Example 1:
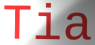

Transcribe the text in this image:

Tia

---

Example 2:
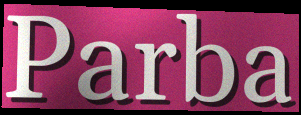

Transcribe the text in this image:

Parba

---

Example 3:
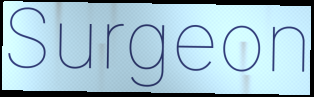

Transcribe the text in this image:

Surgeon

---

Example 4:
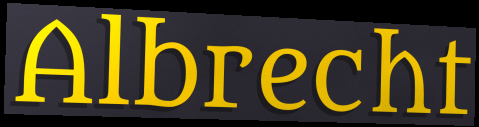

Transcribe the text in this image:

Albrecht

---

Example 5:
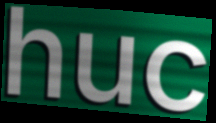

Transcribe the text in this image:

huc